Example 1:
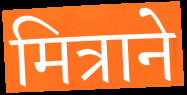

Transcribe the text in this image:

मित्राने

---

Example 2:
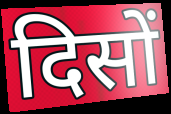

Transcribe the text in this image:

दिसों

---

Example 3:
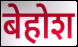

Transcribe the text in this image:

बेहोश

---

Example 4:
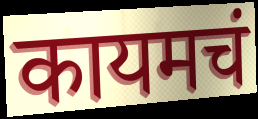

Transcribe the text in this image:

कायमचं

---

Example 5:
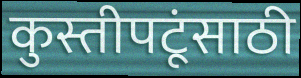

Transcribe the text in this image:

कुस्तीपटूंसाठी